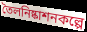
তৈলনিষ্কাশনকল্পে